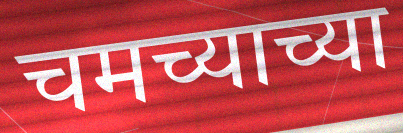
चमच्याच्या